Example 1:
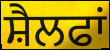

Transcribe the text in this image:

ਸ਼ੈਲਫਾਂ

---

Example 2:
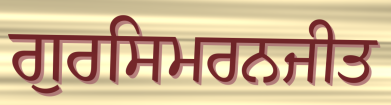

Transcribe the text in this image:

ਗੁਰਸਿਮਰਨਜੀਤ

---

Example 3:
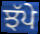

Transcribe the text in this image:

ਝੱਪੇ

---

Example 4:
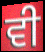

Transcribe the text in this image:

ਵੀ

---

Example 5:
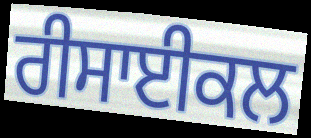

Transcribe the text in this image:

ਰੀਸਾਈਕਲ